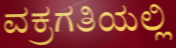
ವಕ್ರಗತಿಯಲ್ಲಿ